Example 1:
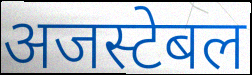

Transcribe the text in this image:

अजस्टेबल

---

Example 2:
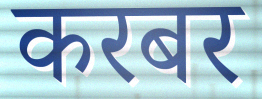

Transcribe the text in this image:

करबर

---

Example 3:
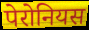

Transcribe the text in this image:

पेरोनियस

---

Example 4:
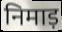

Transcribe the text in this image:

निमाड़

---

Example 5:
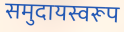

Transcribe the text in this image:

समुदायस्वरूप